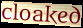
cloaked